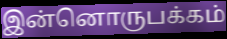
இன்னொருபக்கம்